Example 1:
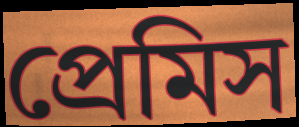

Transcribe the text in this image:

প্রেমিস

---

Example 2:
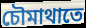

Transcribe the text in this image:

চৌমাথাতে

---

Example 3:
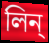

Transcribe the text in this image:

লিন্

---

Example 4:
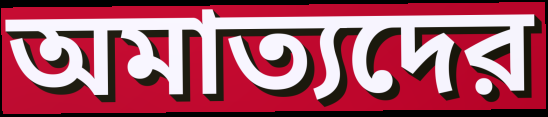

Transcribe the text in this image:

অমাত্যদের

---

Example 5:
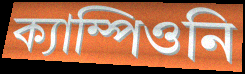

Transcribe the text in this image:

ক্যাম্পিওনি